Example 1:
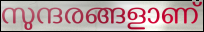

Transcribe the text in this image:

സുന്ദരങ്ങളാണ്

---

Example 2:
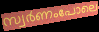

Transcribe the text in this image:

സ്വർണംപോലെ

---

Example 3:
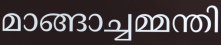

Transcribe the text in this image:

മാങ്ങാച്ചമ്മന്തി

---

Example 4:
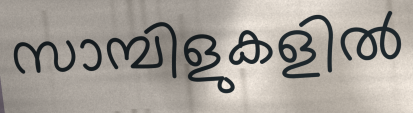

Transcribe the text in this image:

സാമ്പിളുകളിൽ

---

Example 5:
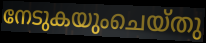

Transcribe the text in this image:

നേടുകയുംചെയ്തു